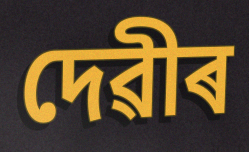
দেৱীৰ